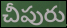
చీపురు